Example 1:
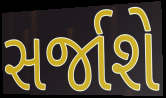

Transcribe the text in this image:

સર્જાશે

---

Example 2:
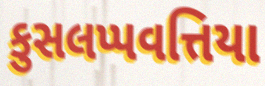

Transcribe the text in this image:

કુસલપ્પવત્તિયા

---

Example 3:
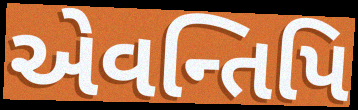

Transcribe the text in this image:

એવન્તિપિ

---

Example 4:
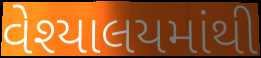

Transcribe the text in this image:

વેશ્યાલયમાંથી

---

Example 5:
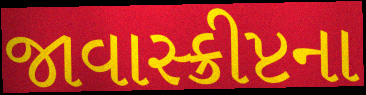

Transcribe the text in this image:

જાવાસ્ક્રીપ્ટના